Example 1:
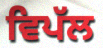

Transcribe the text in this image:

ਵਿਪੱਲ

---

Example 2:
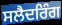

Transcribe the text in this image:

ਸਲੈਦਰਿੰਗ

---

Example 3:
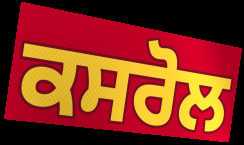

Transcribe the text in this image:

ਕਸਰੋਲ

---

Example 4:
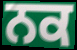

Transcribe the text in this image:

ਨਕ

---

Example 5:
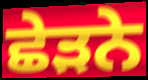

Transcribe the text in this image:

ਛੇੜਨੇ